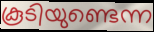
കൂടിയുണ്ടെന്ന